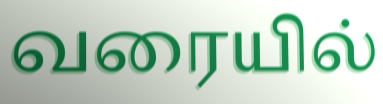
வரையில்